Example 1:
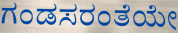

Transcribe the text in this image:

ಗಂಡಸರಂತೆಯೇ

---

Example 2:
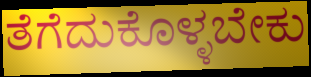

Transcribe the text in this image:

ತೆಗೆದುಕೊಳ್ಳಬೇಕು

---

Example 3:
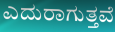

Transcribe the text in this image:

ಎದುರಾಗುತ್ತವೆ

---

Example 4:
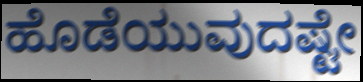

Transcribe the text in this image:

ಹೊಡೆಯುವುದಷ್ಟೇ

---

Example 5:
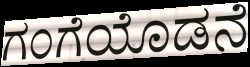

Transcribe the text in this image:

ಗಂಗೆಯೊಡನೆ